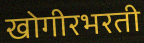
खोगीरभरती